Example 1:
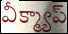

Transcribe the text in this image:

వీక్మ్యాప్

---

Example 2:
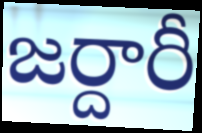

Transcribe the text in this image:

జర్దారీ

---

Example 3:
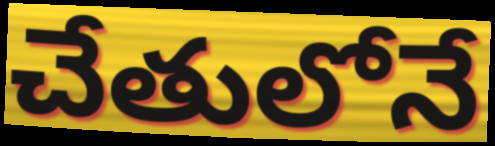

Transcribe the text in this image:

చేతులోనే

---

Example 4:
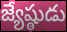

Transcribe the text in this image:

జ్యేష్ఠుడు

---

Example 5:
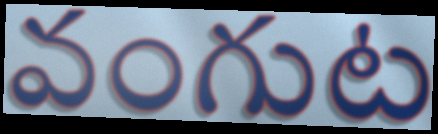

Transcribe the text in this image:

వంగుట